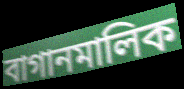
বাগানমালিক